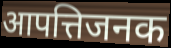
आपत्तिजनक